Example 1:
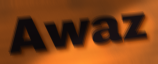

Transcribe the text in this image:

Awaz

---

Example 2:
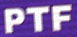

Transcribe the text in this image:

PTF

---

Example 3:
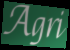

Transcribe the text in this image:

Agri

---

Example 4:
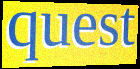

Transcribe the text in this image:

quest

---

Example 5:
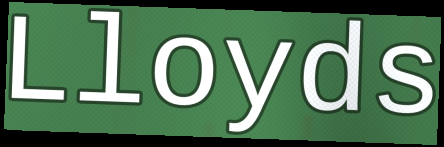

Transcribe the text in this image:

Lloyds